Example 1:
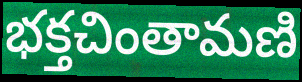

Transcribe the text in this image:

భక్తచింతామణి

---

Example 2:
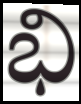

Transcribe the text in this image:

భి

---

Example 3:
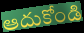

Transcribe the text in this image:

ఆదుకోండి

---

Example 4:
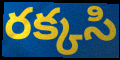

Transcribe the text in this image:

రక్కసి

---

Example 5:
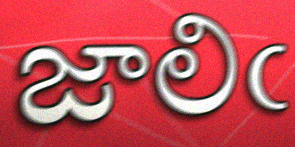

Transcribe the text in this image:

జాలిఁ